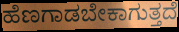
ಹೆಣಗಾಡಬೇಕಾಗುತ್ತದೆ